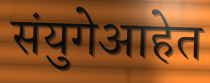
संयुगेआहेत